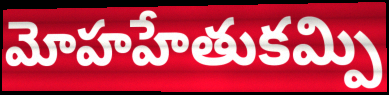
మోహహేతుకమ్పి